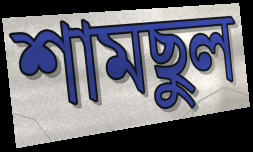
শামছুল